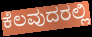
ಕೆಲವುದರಲ್ಲಿ